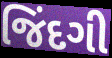
જિંદગી